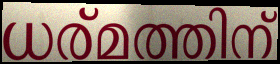
ധര്മത്തിന്